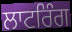
ਲਾਟਰਿੰਗ